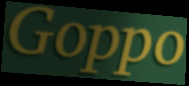
Goppo